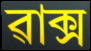
ৱাক্স